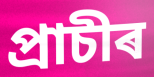
প্ৰাচীৰ